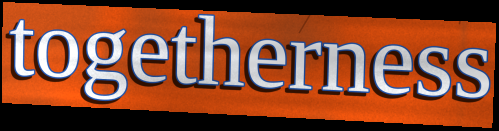
togetherness